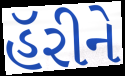
હૅરીને